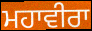
ਮਹਾਵੀਰਾ